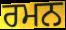
ਰਮਨ